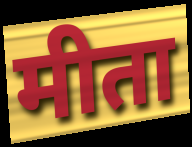
मीता